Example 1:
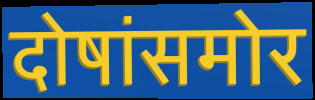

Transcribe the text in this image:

दोषांसमोर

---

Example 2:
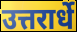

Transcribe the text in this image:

उत्तरार्धे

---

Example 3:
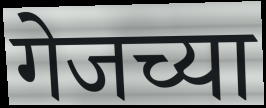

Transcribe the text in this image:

गेजच्या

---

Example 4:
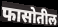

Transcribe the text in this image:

फासोतील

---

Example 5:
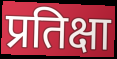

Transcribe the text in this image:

प्रतिक्षा